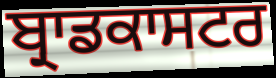
ਬ੍ਰਾਡਕਾਸਟਰ